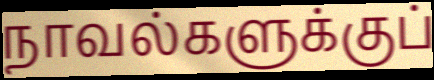
நாவல்களுக்குப்